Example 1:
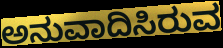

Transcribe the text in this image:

ಅನುವಾದಿಸಿರುವ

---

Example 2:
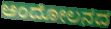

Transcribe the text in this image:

ಅಂದೋಲನದ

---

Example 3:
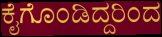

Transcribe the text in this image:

ಕೈಗೊಂಡಿದ್ದರಿಂದ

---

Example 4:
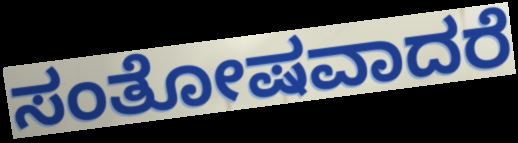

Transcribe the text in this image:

ಸಂತೋಷವಾದರೆ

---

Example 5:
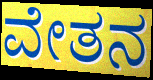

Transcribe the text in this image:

ವೇತನ